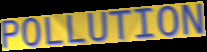
POLLUTION